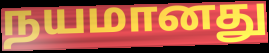
நயமானது